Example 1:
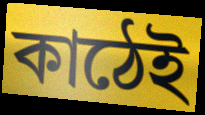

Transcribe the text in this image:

কাঠেই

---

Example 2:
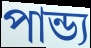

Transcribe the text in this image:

পান্ড্য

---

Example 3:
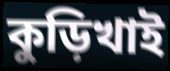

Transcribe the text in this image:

কুড়িখাই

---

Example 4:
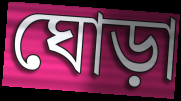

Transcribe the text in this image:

ঘোড়া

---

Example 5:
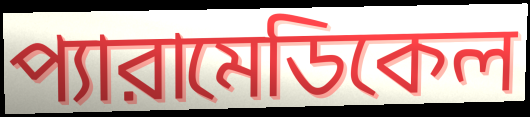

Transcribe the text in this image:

প্যারামেডিকেল